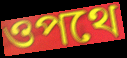
ওপথে